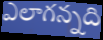
ఎలాగన్నది